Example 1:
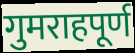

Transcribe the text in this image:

गुमराहपूर्ण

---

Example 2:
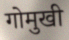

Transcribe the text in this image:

गोमुखी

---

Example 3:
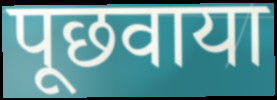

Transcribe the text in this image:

पूछवाया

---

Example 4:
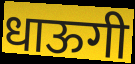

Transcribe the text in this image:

धाऊगी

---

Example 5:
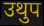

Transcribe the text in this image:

उथुप